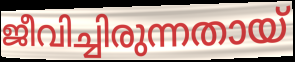
ജീവിച്ചിരുന്നതായ്